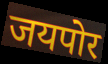
जयपोर